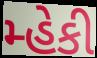
મ્હેકી